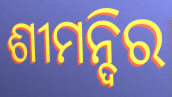
ଶୀମନ୍ଦିର